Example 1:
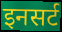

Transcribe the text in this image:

इनसर्ट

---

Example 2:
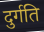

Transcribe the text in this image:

दुर्गति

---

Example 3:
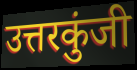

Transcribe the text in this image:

उत्तरकुंजी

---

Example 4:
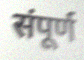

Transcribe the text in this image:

संपूर्ण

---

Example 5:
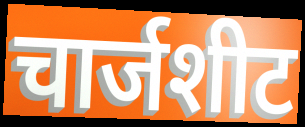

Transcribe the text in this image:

चार्जशीट